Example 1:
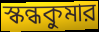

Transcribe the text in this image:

স্কন্ধকুমার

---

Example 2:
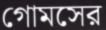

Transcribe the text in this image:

গোমসের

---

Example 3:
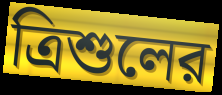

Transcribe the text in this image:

ত্রিশুলের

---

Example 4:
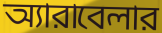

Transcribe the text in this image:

অ্যারাবেলার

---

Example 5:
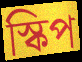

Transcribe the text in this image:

স্কিপ